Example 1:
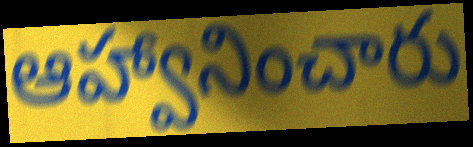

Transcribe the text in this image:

ఆహ్వానించారు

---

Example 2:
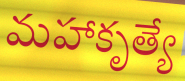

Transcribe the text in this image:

మహాకృత్యే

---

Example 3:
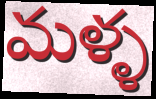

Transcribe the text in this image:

మళ్ళ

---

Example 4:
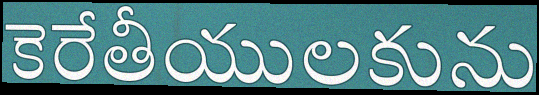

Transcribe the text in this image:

కెరేతీయులకును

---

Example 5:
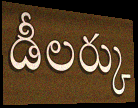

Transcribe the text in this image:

డీలర్కు